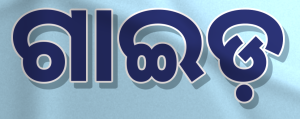
ଗାଇଡ଼